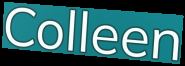
Colleen